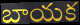
బాయక